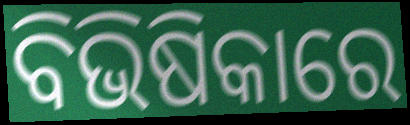
ବିଭିଷିକାରେ